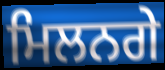
ਮਿਲਨਗੇ